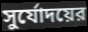
সুর্যোদয়ের